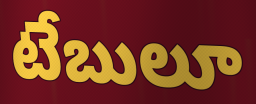
టేబులూ